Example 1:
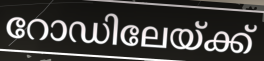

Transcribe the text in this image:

റോഡിലേയ്ക്ക്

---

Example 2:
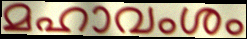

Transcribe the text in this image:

മഹാവംശം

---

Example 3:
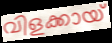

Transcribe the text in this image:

വിളക്കായ്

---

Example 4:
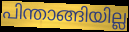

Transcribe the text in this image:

പിന്താങ്ങിയില്ല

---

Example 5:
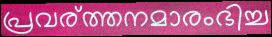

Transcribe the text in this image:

പ്രവര്ത്തനമാരംഭിച്ച